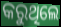
କରୁଥିଲେ